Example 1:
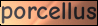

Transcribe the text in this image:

porcellus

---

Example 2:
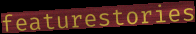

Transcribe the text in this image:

featurestories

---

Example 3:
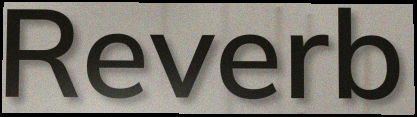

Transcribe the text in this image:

Reverb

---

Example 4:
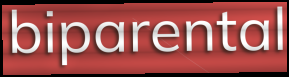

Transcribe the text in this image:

biparental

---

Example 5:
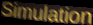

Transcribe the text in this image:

Simulation